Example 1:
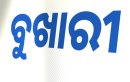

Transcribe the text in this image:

ବୁଖାରୀ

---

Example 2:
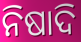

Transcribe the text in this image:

ନିଷାଦି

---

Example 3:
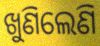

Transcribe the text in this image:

ଖୁଣିଲେଣି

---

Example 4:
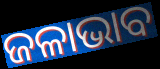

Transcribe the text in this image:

ଜଳାଭାବ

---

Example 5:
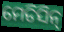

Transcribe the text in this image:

ମେଡିସିନ୍